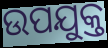
ଉପଯୁକ୍ତ